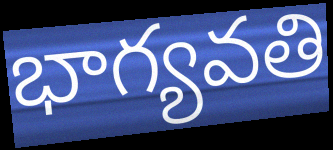
భాగ్యవతి